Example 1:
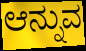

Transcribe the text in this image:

ಆನ್ನುವ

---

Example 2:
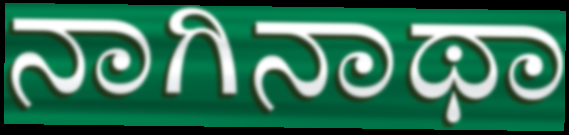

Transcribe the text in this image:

ನಾಗಿನಾಥಾ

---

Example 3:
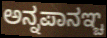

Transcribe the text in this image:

ಅನ್ನಪಾನಞ್ಚ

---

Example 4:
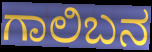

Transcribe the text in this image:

ಗಾಲಿಬನ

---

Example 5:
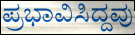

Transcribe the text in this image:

ಪ್ರಭಾವಿಸಿದ್ದವು